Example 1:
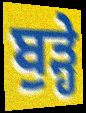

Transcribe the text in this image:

ਬੁੜ੍ਹੇ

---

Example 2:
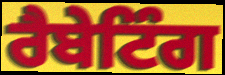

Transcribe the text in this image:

ਰੈਬੇਟਿੰਗ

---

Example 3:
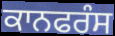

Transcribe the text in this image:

ਕਾਨਫਰੰਸ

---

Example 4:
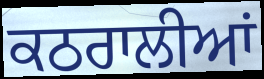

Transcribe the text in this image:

ਕਠਰਾਲੀਆਂ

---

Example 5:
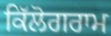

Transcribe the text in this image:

ਕਿੱਲੋਗਰਾਮ